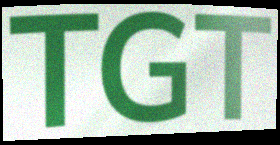
TGT